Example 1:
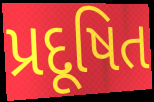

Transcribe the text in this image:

પ્રદૂષિત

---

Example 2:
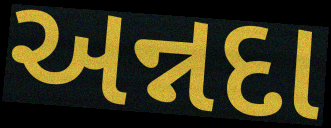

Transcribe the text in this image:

અન્નદા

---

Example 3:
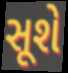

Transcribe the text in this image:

સૂશે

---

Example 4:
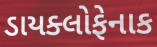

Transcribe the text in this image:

ડાયક્લોફેનાક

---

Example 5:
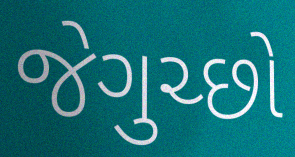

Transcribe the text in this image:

જેગુચ્છો